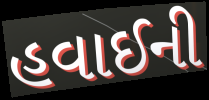
હવાઈની